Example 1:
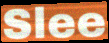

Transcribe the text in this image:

Slee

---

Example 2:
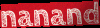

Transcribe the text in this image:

nanand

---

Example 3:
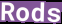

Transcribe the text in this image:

Rods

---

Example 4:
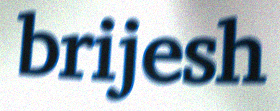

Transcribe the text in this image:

brijesh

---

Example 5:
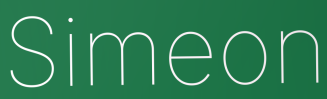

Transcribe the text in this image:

Simeon